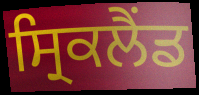
ਸ੍ਰਿਕਲੈਂਡ